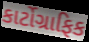
કાર્ટોગ્રાફિક